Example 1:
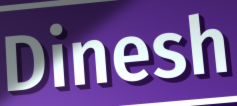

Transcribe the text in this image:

Dinesh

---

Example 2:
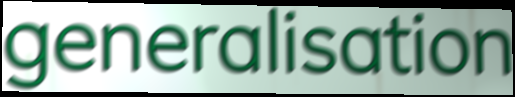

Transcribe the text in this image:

generalisation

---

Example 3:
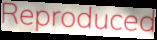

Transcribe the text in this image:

Reproduced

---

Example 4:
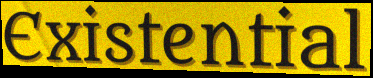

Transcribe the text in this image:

Existential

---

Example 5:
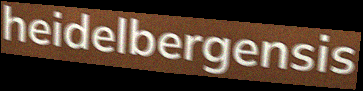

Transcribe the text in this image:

heidelbergensis